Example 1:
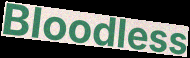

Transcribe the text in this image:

Bloodless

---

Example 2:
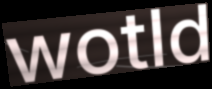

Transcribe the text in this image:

wotld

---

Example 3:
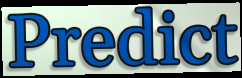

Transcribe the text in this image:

Predict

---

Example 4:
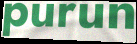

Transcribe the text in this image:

purun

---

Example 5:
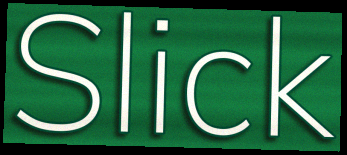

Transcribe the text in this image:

Slick